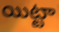
యిట్టా